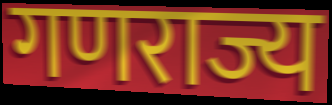
गणराज्य